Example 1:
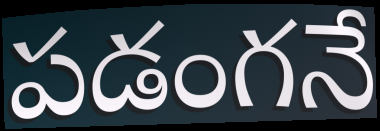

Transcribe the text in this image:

పడంగనే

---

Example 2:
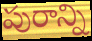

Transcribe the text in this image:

పురాన్ని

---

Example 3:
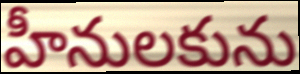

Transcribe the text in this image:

హీనులకును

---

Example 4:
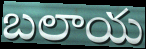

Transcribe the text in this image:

బలాయ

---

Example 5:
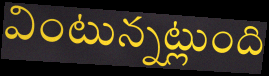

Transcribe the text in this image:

వింటున్నట్లుంది